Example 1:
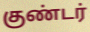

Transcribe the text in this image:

குண்டர்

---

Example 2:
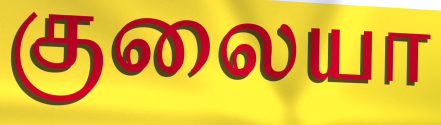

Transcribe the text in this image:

குலையா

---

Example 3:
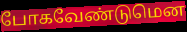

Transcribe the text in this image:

போகவேண்டுமென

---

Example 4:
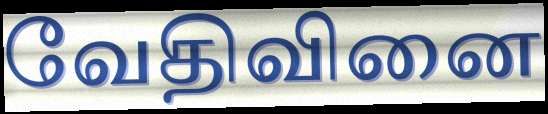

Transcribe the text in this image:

வேதிவினை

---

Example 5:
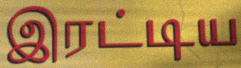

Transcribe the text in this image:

இரட்டிய